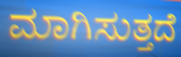
ಮಾಗಿಸುತ್ತದೆ